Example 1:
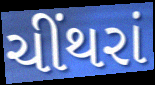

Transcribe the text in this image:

ચીંથરાં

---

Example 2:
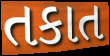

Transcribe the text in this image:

તકાત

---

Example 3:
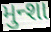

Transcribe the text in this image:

મુન્શા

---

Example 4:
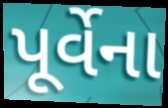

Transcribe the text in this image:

પૂર્વેના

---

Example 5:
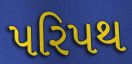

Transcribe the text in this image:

પરિપથ